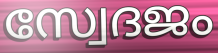
സ്വേദജം